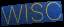
WISC